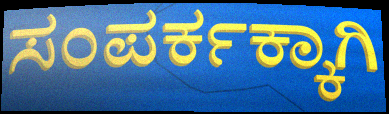
ಸಂಪರ್ಕಕ್ಕಾಗಿ